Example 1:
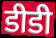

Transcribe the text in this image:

डीडी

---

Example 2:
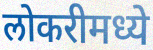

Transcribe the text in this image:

लोकरीमध्ये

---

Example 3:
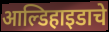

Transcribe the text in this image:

आल्डिहाइडाचे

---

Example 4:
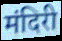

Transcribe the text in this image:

मंदिरी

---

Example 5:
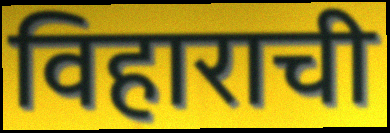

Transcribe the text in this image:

विहाराची